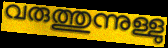
വരുത്തുന്നുള്ളു